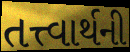
તત્ત્વાર્થની